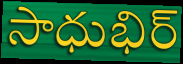
సాధుభిర్